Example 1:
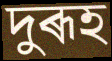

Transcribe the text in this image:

দুৰূহ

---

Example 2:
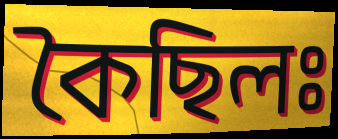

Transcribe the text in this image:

কৈছিলঃ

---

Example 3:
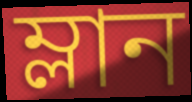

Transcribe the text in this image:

ম্লান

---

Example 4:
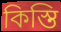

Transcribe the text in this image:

কিস্তি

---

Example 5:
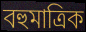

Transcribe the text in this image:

বহুমাত্ৰিক